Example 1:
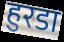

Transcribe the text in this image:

हुरडा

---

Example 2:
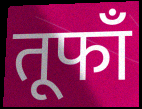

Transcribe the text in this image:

तूफाँ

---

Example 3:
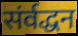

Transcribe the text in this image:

संर्वद्धन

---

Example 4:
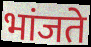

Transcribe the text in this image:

भांजते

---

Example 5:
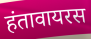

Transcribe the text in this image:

हंतावायरस